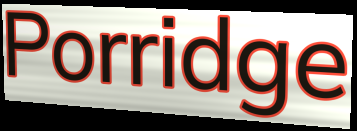
Porridge